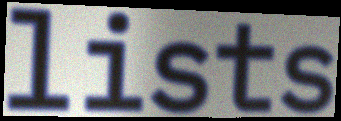
lists